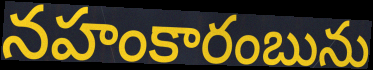
నహంకారంబును